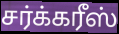
சர்க்கரீஸ்